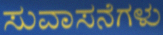
ಸುವಾಸನೆಗಳು